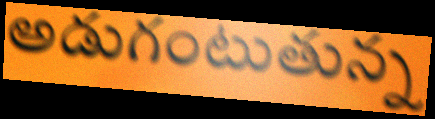
అడుగంటుతున్న